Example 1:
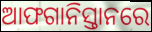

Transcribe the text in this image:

ଆଫଗାନିସ୍ତାନରେ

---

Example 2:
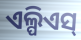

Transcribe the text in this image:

ଏଲ୍ପିଏସ୍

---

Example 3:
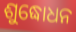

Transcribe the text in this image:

ଶୁଦ୍ଧୋଧନ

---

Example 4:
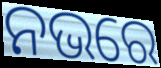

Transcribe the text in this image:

ନଭରେ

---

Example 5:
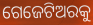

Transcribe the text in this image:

ଗେଜେଟିଅରକୁ